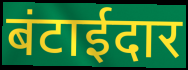
बंटाईदार